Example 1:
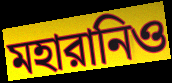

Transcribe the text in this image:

মহারানিও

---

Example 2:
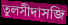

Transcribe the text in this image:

তুলসীদাসজি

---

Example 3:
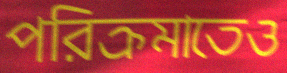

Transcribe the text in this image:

পরিক্রমাতেও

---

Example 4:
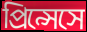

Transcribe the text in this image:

প্রিন্সেসে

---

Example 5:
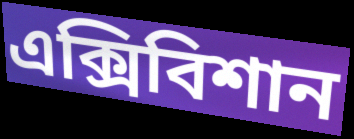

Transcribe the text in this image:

এক্সিবিশান